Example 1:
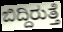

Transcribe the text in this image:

ಬಿದ್ದಿರುತ್ತೆ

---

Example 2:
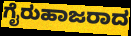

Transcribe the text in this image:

ಗೈರುಹಾಜರಾದ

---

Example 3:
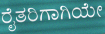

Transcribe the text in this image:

ರೈತರಿಗಾಗಿಯೇ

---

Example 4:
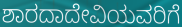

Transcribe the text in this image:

ಶಾರದಾದೇವಿಯವರಿಗೆ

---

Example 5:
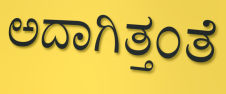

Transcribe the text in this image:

ಅದಾಗಿತ್ತಂತೆ